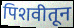
पिशवीतून